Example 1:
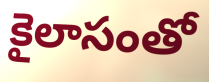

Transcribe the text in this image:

కైలాసంతో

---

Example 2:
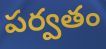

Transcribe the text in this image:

పర్వతం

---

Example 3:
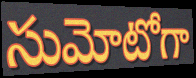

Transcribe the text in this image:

సుమోటోగా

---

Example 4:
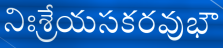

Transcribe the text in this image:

నిఃశ్రేయసకరవుభౌ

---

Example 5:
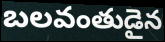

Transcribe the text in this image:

బలవంతుడైన